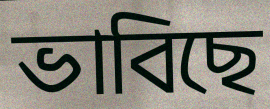
ভাবিছে